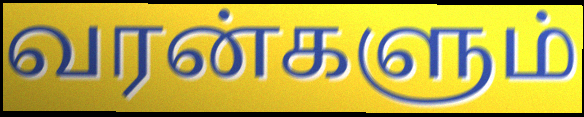
வரன்களும்